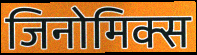
जिनोमिक्स